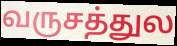
வருசத்துல